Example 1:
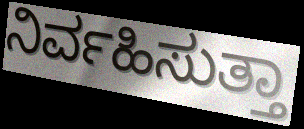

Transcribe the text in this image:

ನಿರ್ವಹಿಸುತ್ತಾ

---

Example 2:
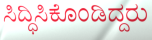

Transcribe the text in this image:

ಸಿದ್ಧಿಸಿಕೊಂಡಿದ್ದರು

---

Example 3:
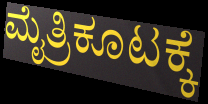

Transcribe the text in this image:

ಮೈತ್ರಿಕೂಟಕ್ಕೆ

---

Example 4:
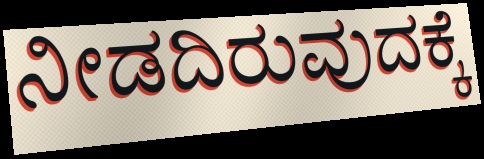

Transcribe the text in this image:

ನೀಡದಿರುವುದಕ್ಕೆ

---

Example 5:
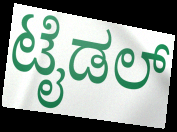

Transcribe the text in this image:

ಟೈಡಲ್